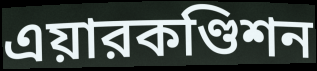
এয়ারকণ্ডিশন